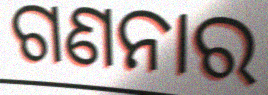
ଗଣନାର